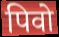
पिवो